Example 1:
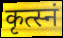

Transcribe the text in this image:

कृत्स्नं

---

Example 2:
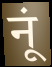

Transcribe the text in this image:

नूं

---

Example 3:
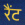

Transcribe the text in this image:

रैंट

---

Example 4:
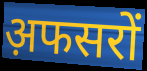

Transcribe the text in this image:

अ़फसरों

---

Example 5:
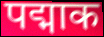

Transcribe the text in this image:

पद्माक